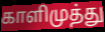
காளிமுத்து